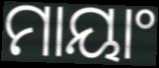
ମାୟାଂ